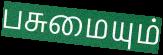
பசுமையும்